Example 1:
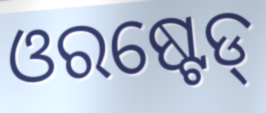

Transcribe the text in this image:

ଓରଷ୍ଟେଡ୍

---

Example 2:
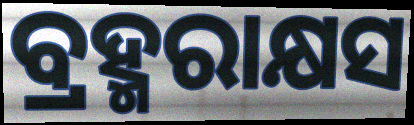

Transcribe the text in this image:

ବ୍ରହ୍ମରାକ୍ଷସ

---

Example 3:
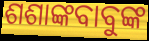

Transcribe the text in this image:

ଶଶାଙ୍କବାବୁଙ୍କ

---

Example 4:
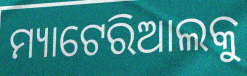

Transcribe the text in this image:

ମ୍ୟାଟେରିଆଲକୁ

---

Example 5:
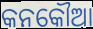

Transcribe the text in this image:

କନକୌଆ